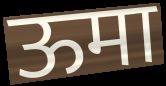
ऊमा